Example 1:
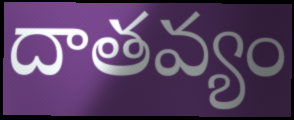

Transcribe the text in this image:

దాతవ్యం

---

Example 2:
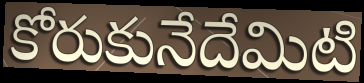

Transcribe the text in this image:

కోరుకునేదేమిటి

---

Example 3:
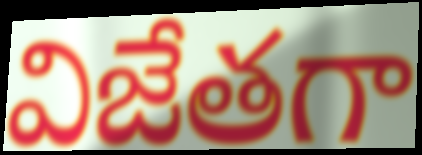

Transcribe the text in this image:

విజేతగా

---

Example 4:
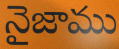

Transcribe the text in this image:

నైజాము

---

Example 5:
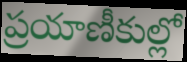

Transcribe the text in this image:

ప్రయాణీకుల్లో